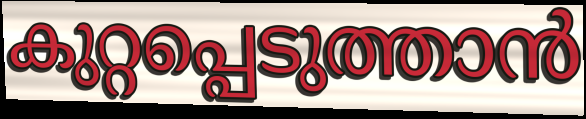
കുറ്റപ്പെടുത്താൻ